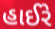
હાઈરે